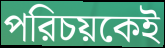
পরিচয়কেই